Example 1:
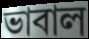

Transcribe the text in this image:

ভাবাল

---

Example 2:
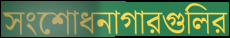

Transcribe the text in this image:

সংশোধনাগারগুলির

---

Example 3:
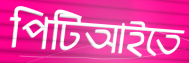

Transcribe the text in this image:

পিটিআইতে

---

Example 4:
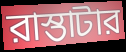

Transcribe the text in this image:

রাস্তাটার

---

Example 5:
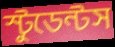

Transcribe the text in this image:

স্টুডেন্টস